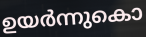
ഉയർന്നുകൊ